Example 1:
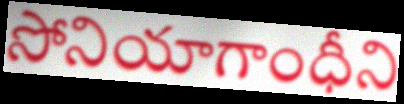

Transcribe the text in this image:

సోనియాగాంధీని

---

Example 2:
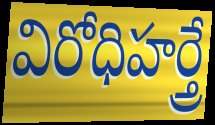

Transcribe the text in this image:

విరోధిహర్త్రే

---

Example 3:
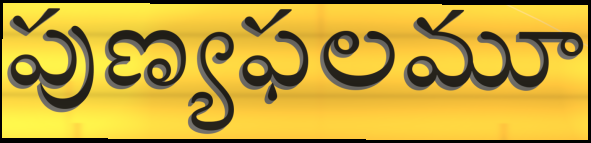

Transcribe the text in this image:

పుణ్యఫలమూ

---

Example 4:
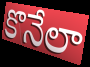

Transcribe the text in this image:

కొనేలా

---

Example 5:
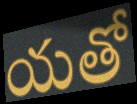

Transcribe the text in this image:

యతో